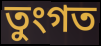
তুংগত